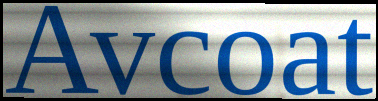
Avcoat